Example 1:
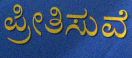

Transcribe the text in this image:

ಪ್ರೀತಿಸುವೆ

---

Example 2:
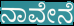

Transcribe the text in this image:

ನಾವೇನೆ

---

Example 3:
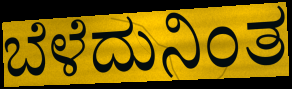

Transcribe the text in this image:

ಬೆಳೆದುನಿಂತ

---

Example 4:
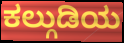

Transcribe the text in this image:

ಕಲ್ಗುಡಿಯ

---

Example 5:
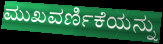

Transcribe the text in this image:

ಮುಖವರ್ಣಿಕೆಯನ್ನು